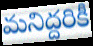
మనిద్దరికీ